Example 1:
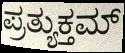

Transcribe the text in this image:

ಪ್ರತ್ಯುಕ್ತಮ್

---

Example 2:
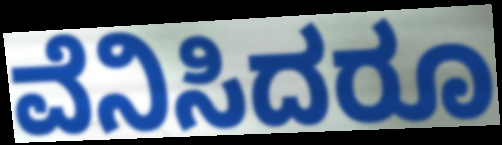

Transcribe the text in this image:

ವೆನಿಸಿದರೂ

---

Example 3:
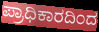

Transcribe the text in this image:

ಪ್ರಾಧಿಕಾರದಿಂದ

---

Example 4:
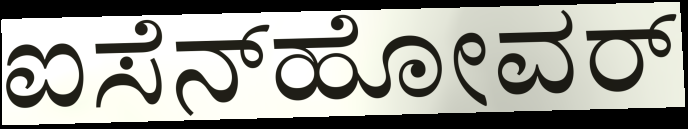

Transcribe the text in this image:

ಐಸೆನ್‍ಹೋವರ್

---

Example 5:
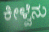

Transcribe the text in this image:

ಕೀಳ್ವೆನು